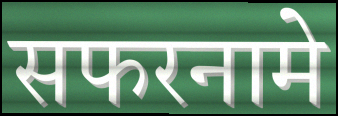
सफरनामे